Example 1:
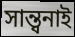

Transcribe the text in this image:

সান্ত্বনাই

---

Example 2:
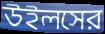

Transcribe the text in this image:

উইলসের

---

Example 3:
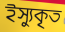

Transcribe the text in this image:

ইস্যুকৃত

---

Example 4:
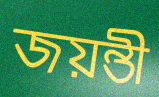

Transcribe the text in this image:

জয়ন্তী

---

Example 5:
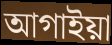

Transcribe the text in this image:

আগাইয়া